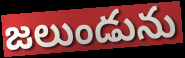
జలుండును